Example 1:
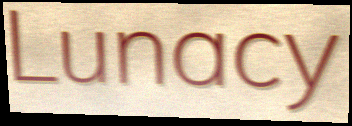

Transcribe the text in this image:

Lunacy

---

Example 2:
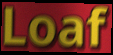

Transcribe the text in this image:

Loaf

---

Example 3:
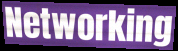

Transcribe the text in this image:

Networking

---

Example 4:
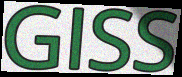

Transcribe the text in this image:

GISS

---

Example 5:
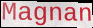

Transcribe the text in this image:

Magnan